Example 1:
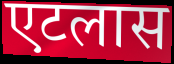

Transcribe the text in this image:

एटलास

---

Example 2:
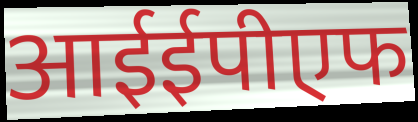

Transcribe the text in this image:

आईईपीएफ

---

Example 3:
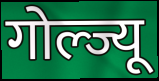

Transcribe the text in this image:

गोल्ज्यू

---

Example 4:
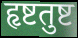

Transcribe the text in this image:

हृष्टतुष्ट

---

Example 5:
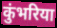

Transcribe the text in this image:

कुंभरिया